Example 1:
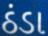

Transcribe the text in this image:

ઠંડા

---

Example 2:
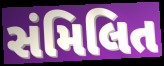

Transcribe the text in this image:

સંમિલિત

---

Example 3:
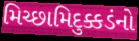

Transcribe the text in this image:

મિચ્છામિદુક્કડંનો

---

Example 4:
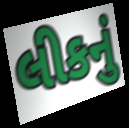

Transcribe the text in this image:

લીકનું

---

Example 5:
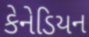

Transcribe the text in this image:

કેનેડિયન